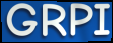
GRPI